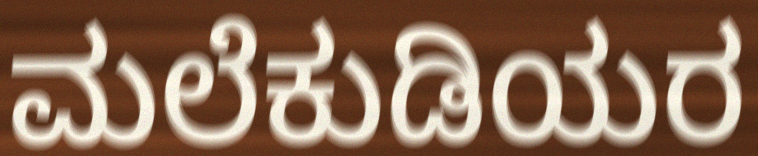
ಮಲೆಕುಡಿಯರ